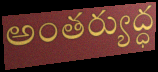
అంతర్యుద్ధ